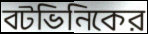
বটভিনিকের